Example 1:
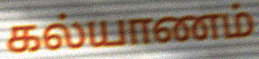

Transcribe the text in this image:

கல்யாணம்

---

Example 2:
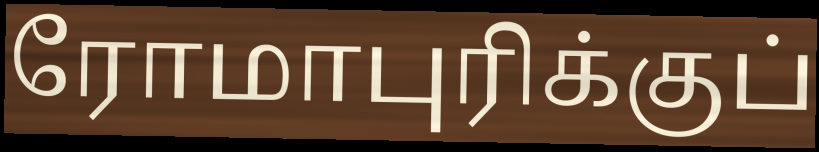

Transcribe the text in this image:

ரோமாபுரிக்குப்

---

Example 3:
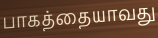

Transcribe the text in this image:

பாகத்தையாவது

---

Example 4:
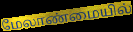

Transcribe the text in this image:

மேலாண்மையில்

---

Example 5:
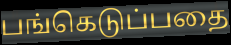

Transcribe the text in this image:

பங்கெடுப்பதை